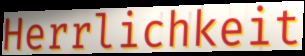
Herrlichkeit